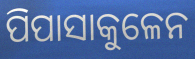
ପିପାସାକୁଳେନ